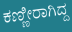
ಕಣ್ಣೀರಾಗಿದ್ದ